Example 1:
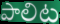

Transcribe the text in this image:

పాలిట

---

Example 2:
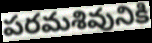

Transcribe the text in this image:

పరమశివునికి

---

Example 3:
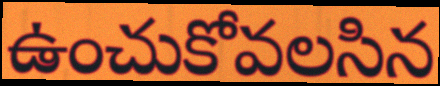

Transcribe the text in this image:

ఉంచుకోవలసిన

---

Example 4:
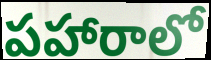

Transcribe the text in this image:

పహారాలో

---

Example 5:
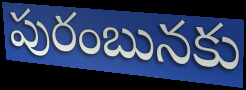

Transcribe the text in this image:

పురంబునకు